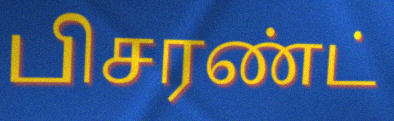
பிசரண்ட்